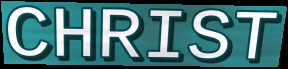
CHRIST